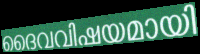
ദൈവവിഷയമായി